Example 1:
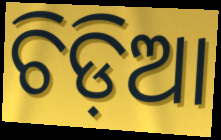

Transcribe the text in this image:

ଚିଡ଼ିଆ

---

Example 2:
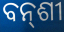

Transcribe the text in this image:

ବନ୍‍ଶୀ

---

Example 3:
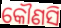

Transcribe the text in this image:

କୌଣସି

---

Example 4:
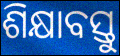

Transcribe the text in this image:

ଶିକ୍ଷାବସ୍ତୁ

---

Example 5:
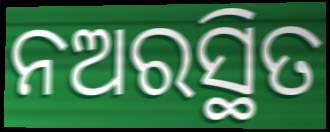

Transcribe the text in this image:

ନଅରସ୍ଥିତ